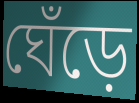
ঘেঁড়ে